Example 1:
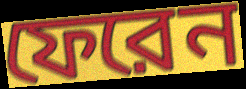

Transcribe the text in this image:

ফেরেন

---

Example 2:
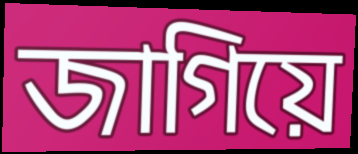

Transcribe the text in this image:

জাগিয়ে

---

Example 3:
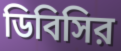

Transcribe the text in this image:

ডিবিসির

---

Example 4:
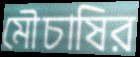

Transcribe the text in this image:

মৌচাষির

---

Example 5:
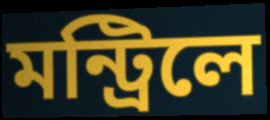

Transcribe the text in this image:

মন্ট্রিলে